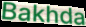
Bakhda